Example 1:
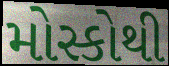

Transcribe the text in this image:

મોસ્કોથી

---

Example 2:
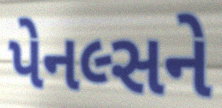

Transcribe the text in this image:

પેનલ્સને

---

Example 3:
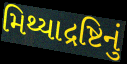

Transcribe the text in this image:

મિથ્યાદ્રષ્ટિનું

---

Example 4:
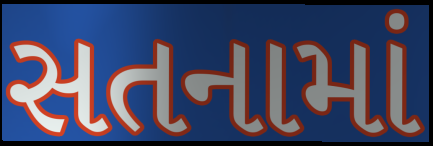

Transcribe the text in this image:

સતનામાં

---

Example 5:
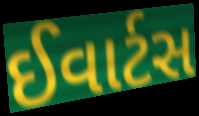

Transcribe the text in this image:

ઈવાર્ટસ